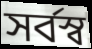
সর্বস্ব